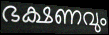
ഭക്ഷണവും